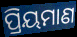
ପ୍ରିୟମାଣ